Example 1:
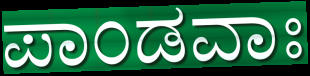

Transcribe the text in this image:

ಪಾಂಡವಾಃ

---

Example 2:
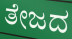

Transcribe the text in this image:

ತೇಜದ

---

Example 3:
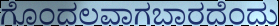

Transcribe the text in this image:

ಗೊಂದಲವಾಗಬಾರದೆಂದು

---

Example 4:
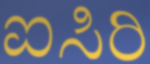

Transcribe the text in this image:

ಐಸಿರಿ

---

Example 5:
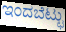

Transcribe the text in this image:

ಇಂದಬೆಟ್ಟು